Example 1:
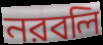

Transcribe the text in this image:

নরবলি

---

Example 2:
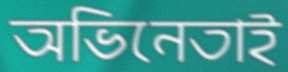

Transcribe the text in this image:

অভিনেতাই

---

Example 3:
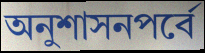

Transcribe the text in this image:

অনুশাসনপর্বে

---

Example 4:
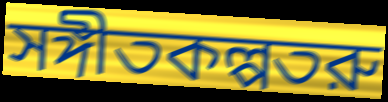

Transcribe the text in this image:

সঙ্গীতকল্পতরু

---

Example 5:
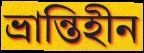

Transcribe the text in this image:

ভ্রান্তিহীন